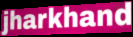
jharkhand